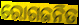
ରୋଗଜନିତ